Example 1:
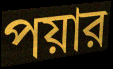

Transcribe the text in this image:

পয়ার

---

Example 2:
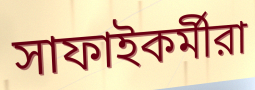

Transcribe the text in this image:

সাফাইকর্মীরা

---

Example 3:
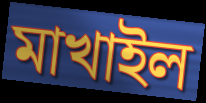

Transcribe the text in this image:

মাখাইল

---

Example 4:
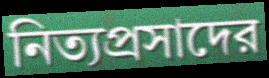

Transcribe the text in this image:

নিত্যপ্রসাদের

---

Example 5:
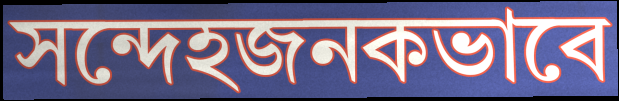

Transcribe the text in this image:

সন্দেহজনকভাবে